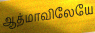
ஆத்மாவிலேயே